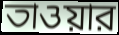
তাওয়ার